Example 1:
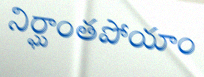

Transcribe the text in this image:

నిర్ఘాంతపోయాం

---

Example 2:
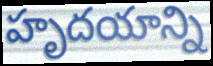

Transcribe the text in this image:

హృదయాన్ని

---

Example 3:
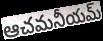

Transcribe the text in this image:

ఆచమనీయమ్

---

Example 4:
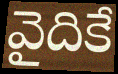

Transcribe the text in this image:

వైదికే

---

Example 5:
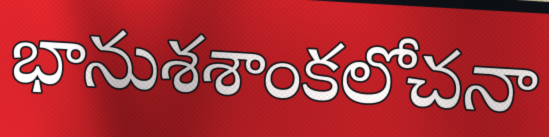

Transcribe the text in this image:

భానుశశాంకలోచనా